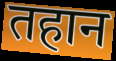
तहान